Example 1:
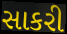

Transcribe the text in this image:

સાકરી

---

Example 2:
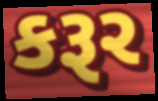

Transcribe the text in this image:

કરૂર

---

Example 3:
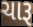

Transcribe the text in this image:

ચારૂ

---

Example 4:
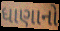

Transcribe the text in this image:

ધાણાનો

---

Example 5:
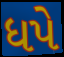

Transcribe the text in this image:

ધપે